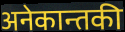
अनेकान्तकी